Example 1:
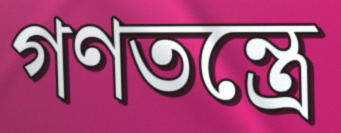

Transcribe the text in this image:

গণতন্ত্রে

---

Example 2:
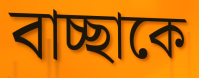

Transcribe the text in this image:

বাচ্ছাকে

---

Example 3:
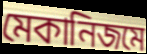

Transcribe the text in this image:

মেকানিজমে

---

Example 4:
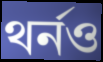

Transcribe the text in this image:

থর্নও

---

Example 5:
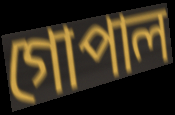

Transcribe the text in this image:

গোপাল